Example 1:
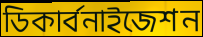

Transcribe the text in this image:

ডিকার্বনাইজেশন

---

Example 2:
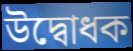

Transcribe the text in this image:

উদ্বোধক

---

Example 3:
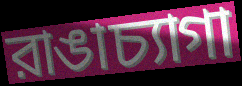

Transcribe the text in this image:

রাঙাচ্যাগা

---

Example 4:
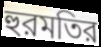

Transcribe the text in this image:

হুরমতির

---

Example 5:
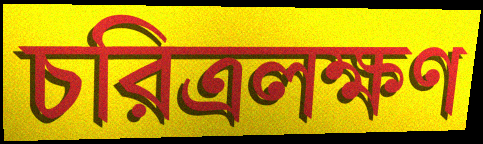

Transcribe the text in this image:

চরিত্রলক্ষণ